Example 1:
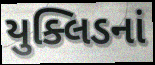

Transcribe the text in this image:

યુક્લિડનાં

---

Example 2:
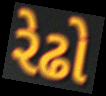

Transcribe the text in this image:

રેઢો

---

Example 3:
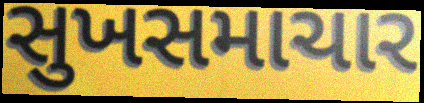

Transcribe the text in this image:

સુખસમાચાર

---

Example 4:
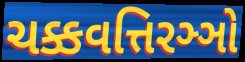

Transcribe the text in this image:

ચક્કવત્તિરઞ્ઞો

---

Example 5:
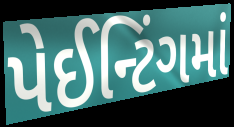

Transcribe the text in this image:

પેઈન્ટિંગમાં